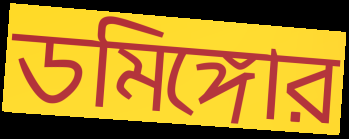
ডমিঙ্গোর